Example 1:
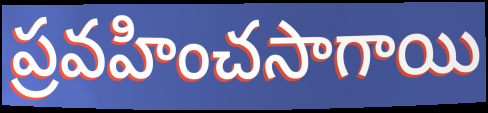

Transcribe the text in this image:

ప్రవహించసాగాయి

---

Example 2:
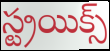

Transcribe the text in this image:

స్ట్రయిక్స్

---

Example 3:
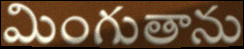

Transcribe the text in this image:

మింగుతాను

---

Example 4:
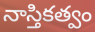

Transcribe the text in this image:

నాస్తికత్వం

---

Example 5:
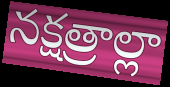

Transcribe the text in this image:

నక్షత్రాల్లా